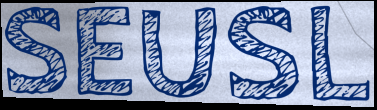
SEUSL